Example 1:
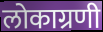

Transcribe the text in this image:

लोकाग्रणी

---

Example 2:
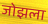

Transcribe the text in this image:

जोझला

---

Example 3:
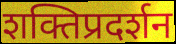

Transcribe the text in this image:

शक्तिप्रदर्शन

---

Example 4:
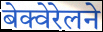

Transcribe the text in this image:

बेक्वेरेलने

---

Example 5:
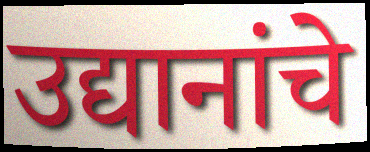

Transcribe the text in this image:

उद्यानांचे